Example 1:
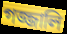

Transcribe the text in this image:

গজ্জালি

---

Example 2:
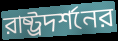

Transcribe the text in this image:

রাষ্ট্রদর্শনের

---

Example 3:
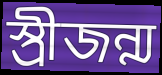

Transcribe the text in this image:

স্ত্রীজন্ম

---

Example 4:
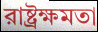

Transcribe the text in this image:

রাষ্ট্রক্ষমতা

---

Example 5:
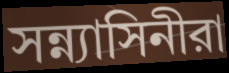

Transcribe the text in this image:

সন্ন্যাসিনীরা